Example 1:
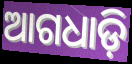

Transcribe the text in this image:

ଆଗଧାଡ଼ି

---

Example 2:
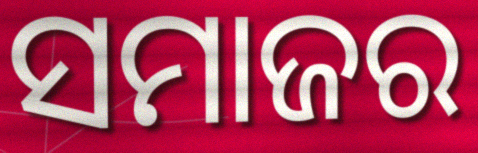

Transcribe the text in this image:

ସମାଜର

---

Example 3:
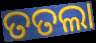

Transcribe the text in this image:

ତତଲା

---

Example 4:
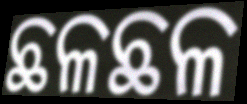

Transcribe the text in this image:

ଛଳଛଳ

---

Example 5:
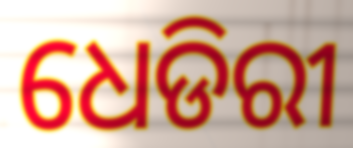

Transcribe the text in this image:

ଧେଡିରୀ